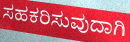
ಸಹಕರಿಸುವುದಾಗಿ